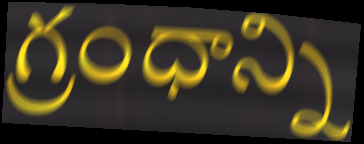
గ్రంధాన్ని